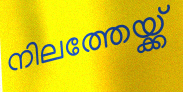
നിലത്തേയ്ക്ക്